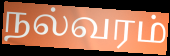
நல்வரம்